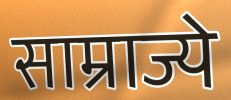
साम्राज्ये